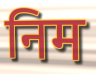
निम